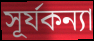
সূর্যকন্যা